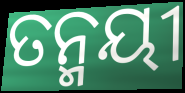
ତନ୍ମୟୀ